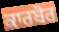
ਕਾਰਬੋਰ